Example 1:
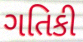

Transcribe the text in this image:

ગતિકી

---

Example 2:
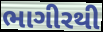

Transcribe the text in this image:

ભાગીરથી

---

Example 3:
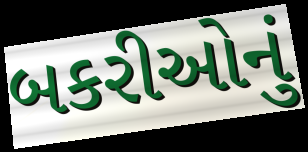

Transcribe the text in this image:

બકરીઓનું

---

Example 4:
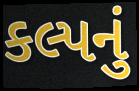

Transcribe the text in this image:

કલ્પનું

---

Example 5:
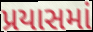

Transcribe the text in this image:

પ્રયાસમાં